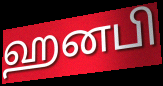
ஹனபி